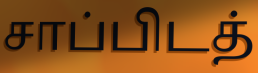
சாப்பிடத்